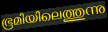
ഭൂമിയിലെത്തുന്നു